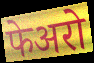
फेअरो